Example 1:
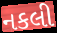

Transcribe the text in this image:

નકલી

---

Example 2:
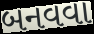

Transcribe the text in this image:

બનવવા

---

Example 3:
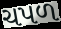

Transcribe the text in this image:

ચપળ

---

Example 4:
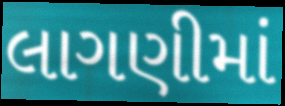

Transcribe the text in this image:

લાગણીમાં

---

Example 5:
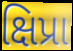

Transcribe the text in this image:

ક્ષિપ્રા